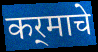
कर्माचे